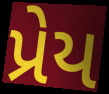
પ્રેય